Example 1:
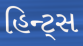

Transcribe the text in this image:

હિન્ટ્સ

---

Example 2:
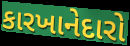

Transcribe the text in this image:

કારખાનેદારો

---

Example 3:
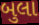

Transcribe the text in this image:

બુલા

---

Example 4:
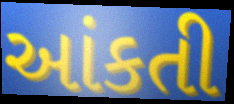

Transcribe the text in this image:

આંકતી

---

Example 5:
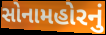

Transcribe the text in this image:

સોનામહોરનું